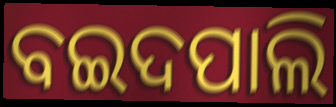
ବଇଦପାଲି